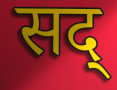
सद्